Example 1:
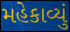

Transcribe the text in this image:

મહેકાવ્યું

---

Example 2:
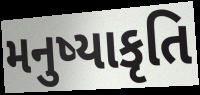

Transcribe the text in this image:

મનુષ્યાકૃતિ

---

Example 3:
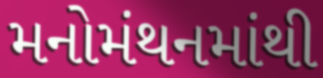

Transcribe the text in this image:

મનોમંથનમાંથી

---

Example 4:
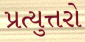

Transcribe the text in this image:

પ્રત્યુત્તરો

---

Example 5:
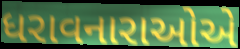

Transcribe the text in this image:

ધરાવનારાઓએ